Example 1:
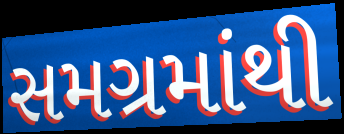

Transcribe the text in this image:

સમગ્રમાંથી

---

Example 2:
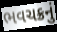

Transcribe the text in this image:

ભવચક્રનું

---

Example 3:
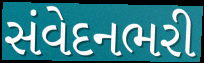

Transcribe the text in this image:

સંવેદનભરી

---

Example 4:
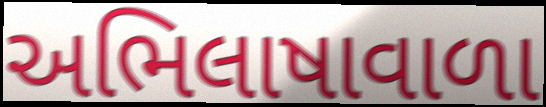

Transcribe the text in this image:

અભિલાષાવાળા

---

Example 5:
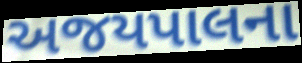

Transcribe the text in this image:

અજયપાલના